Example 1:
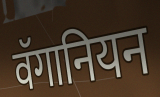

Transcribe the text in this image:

वॅगानियन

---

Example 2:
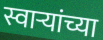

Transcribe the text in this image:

स्वाऱ्यांच्या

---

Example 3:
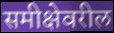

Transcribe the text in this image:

समीक्षेवरील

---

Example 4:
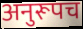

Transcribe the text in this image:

अनुरूपच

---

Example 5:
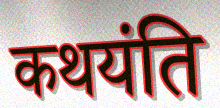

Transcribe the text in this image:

कथयंति